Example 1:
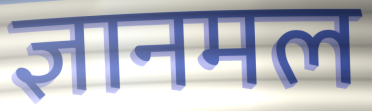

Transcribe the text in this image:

ज्ञानमल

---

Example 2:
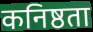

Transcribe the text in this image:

कनिष्ठता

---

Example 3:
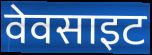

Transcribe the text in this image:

वेवसाइट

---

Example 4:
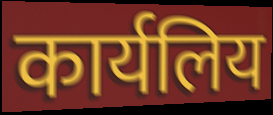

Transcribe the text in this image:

कार्यलिय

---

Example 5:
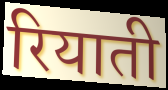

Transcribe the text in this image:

रियाती